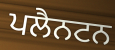
ਪਲੈਨਟਨ